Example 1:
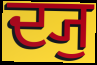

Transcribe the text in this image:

ਦ੍ਯੁ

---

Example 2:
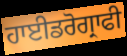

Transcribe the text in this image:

ਹਾਈਡਰੋਗ੍ਰਾਫੀ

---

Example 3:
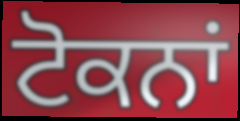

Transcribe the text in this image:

ਟੋਕਨਾਂ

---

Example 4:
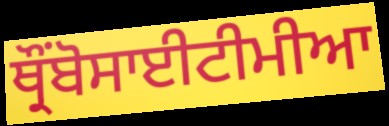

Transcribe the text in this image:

ਥ੍ਰੌਂਬੋਸਾਈਟੀਮੀਆ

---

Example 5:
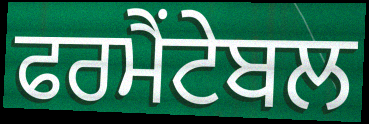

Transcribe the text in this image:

ਫਰਮੈਂਟੇਬਲ